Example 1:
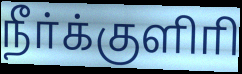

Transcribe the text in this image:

நீர்க்குளிரி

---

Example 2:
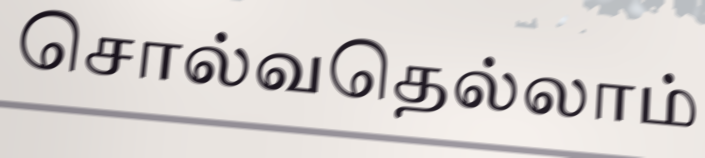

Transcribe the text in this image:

சொல்வதெல்லாம்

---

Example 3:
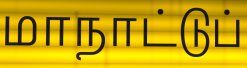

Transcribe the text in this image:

மாநாட்டுப்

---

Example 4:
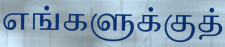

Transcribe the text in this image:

எங்களுக்குத்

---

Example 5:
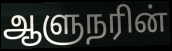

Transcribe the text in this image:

ஆளுநரின்